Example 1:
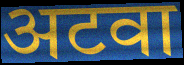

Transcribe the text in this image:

अटवा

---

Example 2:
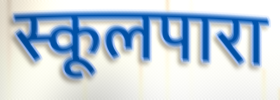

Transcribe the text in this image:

स्कूलपारा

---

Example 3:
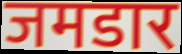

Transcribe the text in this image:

जमडार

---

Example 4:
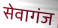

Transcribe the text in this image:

सेवागंज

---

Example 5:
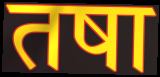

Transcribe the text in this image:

तषा